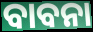
ବାବନା